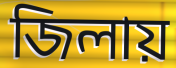
জিলায়